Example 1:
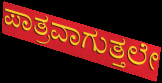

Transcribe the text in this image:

ಪಾತ್ರವಾಗುತ್ತಲೇ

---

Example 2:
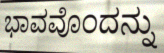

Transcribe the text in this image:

ಭಾವವೊಂದನ್ನು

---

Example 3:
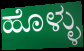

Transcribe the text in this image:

ಹೊಳ್ಳು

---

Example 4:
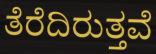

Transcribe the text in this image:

ತೆರೆದಿರುತ್ತವೆ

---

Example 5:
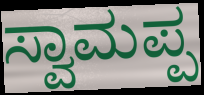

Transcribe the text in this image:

ಸ್ವಾಮಪ್ಪ